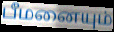
பீமனையும்